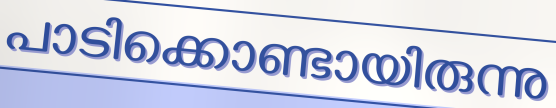
പാടിക്കൊണ്ടായിരുന്നു